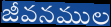
జీవనముల